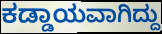
ಕಡ್ಡಾಯವಾಗಿದ್ದು